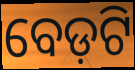
ବେଡ଼ଟି